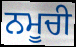
ਨਮੂਚੀ